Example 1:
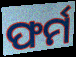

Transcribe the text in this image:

ଫର୍ମ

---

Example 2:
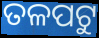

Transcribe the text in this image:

ତଳପଟୁ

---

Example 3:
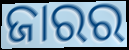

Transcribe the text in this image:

ଜାରର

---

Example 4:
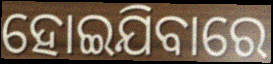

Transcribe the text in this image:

ହୋଇଯିବାରେ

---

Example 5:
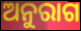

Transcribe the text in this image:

ଅନୁରାଗ